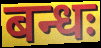
बन्धः